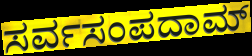
ಸರ್ವಸಂಪದಾಮ್